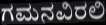
ಗಮನವಿರಲಿ